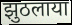
झुठलाया